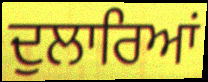
ਦੁਲਾਰਿਆਂ